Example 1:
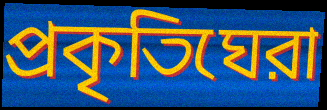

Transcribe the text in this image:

প্রকৃতিঘেরা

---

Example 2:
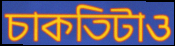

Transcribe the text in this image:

চাকতিটাও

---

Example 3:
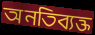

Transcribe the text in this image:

অনতিব্যক্ত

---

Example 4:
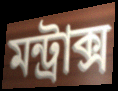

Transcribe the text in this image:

মন্ট্রাক্স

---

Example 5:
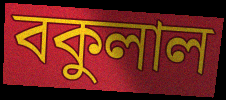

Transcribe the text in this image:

বকুলাল